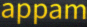
appam